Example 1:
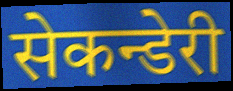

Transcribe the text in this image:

सेकन्डेरी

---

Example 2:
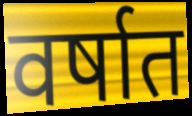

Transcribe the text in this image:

वर्षात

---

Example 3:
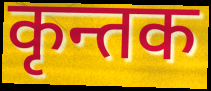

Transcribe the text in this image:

कृन्तक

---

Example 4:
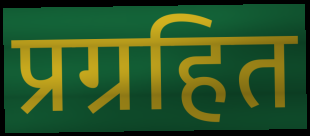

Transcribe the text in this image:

प्रग्रहित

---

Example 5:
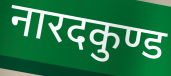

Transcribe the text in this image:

नारदकुण्ड